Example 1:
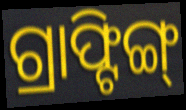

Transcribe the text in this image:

ଗ୍ରାଫ୍ଟିଙ୍ଗ୍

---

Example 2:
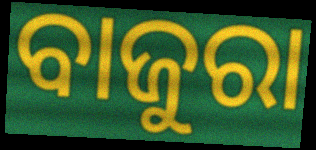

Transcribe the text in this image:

ବାଜୁରା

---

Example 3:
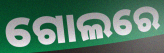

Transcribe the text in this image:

ଗୋଲରେ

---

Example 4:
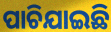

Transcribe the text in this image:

ପାଚିଯାଇଛି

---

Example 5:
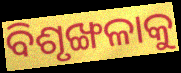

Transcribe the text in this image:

ବିଶୃଙ୍ଖଳାକୁ